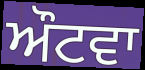
ਔਟਵਾ